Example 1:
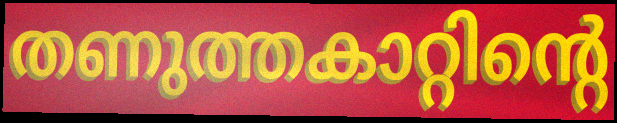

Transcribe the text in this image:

തണുത്തകാറ്റിന്റെ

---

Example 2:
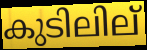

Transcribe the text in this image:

കുടിലില്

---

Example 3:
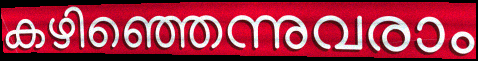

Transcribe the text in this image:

കഴിഞ്ഞെന്നുവരാം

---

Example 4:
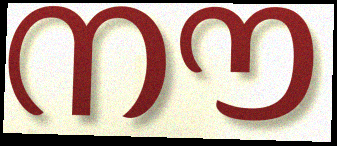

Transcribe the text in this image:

നൗ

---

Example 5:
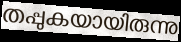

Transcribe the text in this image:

തപ്പുകയായിരുന്നു